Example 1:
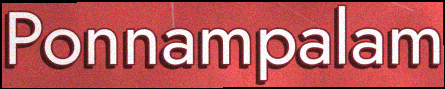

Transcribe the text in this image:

Ponnampalam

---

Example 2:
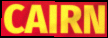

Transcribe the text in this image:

CAIRN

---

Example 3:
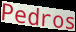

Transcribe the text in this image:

Pedros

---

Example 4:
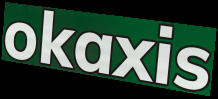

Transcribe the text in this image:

okaxis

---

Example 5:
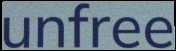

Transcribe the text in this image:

unfree